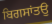
ਬਿਗਸਾਂਤਉ